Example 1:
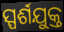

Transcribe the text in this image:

ସ୍ପର୍ଶଯୁକ୍ତ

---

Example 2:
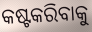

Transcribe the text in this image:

କଷ୍ଟକରିବାକୁ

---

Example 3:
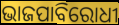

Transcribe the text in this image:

ଭାଜପାବିରୋଧୀ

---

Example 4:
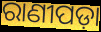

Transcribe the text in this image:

ରାଣୀପଡ଼ା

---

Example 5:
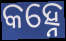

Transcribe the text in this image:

କହ୍ନେ